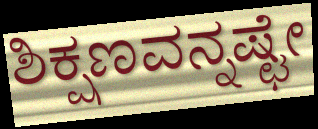
ಶಿಕ್ಷಣವನ್ನಷ್ಟೇ